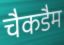
चैकडैम